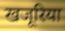
खजूरिया